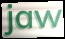
jaw